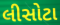
લીસોટા